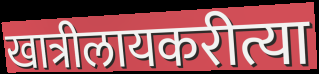
खात्रीलायकरीत्या